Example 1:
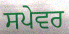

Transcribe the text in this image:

ਸਪੇਵਰ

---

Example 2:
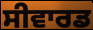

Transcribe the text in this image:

ਸੀਵਾਰਡ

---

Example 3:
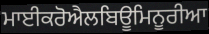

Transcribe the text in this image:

ਮਾਈਕਰੋਐਲਬਿਊਮਿਨੂਰੀਆ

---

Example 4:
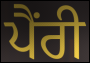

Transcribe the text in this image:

ਪੈਂਰੀ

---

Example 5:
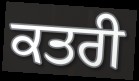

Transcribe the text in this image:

ਕਤਰੀ